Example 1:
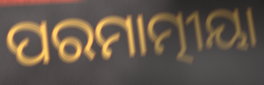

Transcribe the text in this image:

ପରମାତ୍ମୀୟା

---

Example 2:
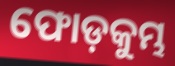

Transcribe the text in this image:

ଫୋଡ଼କୁମ୍ଭ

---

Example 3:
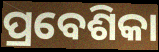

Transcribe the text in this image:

ପ୍ରବେଶିକା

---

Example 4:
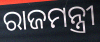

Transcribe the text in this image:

ରାଜମନ୍ତ୍ରୀ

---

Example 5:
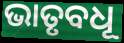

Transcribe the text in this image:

ଭାତୃବଧୂ